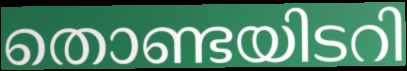
തൊണ്ടയിടറി